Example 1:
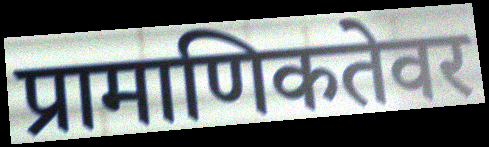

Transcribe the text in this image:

प्रामाणिकतेवर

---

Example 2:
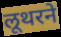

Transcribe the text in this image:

लूथरने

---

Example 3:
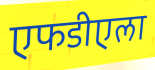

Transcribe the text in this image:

एफडीएला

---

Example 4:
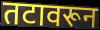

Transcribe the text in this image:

तटावरून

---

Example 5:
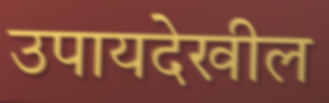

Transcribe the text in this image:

उपायदेखील